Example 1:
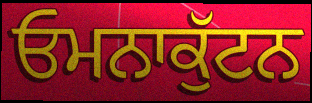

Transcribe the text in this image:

ਓਮਨਾਕੁੱਟਨ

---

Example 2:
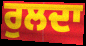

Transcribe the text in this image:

ਰੁਲਦਾ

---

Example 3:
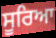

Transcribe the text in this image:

ਸੂਰਿਆ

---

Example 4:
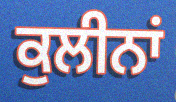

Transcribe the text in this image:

ਕੁਲੀਨਾਂ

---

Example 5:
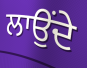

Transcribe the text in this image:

ਲਾਉਂਦੇ